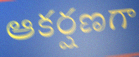
ఆకర్షణగా